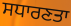
ਸਧਾਰਣਤਾ